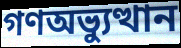
গণঅভ্যুত্থান